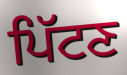
ਪਿੱਟਣ